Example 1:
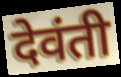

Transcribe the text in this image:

देवंती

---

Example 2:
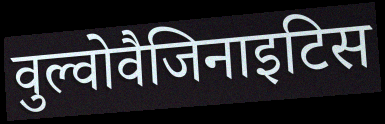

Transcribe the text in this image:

वुल्वोवैजिनाइटिस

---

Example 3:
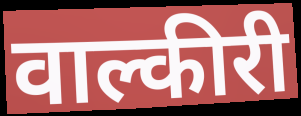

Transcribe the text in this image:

वाल्कीरी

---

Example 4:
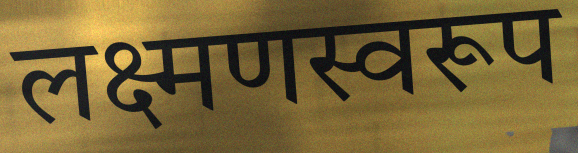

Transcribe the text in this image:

लक्ष्मणस्वरूप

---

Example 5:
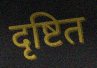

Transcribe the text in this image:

दृष्टित